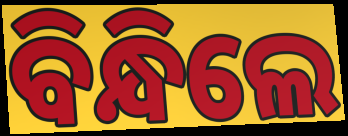
ବିନ୍ଧିଲେ